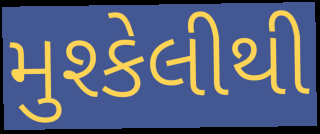
મુશ્કેલીથી